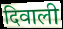
दिवाली